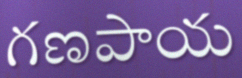
గణపాయ